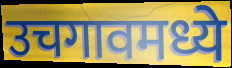
उचगावमध्ये